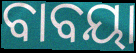
ବାବୟା